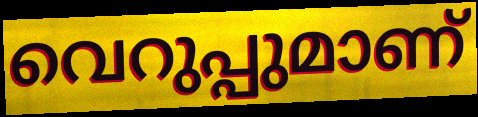
വെറുപ്പുമാണ്